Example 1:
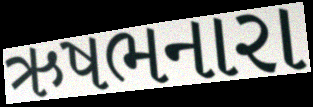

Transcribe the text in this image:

ઋષભનારા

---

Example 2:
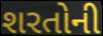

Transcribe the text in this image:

શરતોની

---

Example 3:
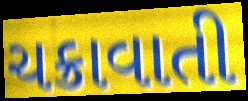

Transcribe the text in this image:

ચક્રાવાતી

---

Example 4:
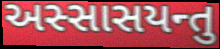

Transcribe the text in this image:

અસ્સાસયન્તુ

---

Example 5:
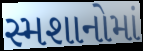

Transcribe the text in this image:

સ્મશાનોમાં